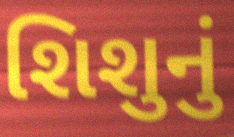
શિશુનું